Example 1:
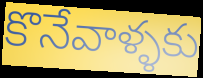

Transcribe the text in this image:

కొనేవాళ్ళకు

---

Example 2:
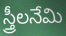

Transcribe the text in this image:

స్త్రీలనేమి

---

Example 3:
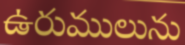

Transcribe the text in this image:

ఉరుములును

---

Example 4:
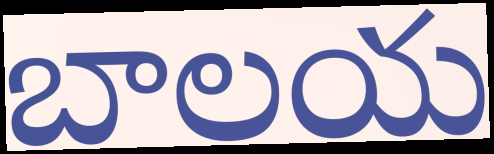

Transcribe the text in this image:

బాలయ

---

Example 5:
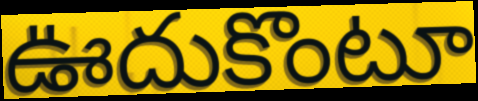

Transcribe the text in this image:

ఊదుకొంటూ